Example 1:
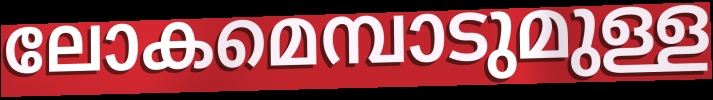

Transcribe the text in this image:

ലോകമെമ്പാടുമുള്ള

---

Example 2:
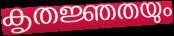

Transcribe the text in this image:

കൃതജ്ഞതയും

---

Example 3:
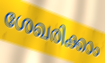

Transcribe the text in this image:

ശേഖരിക്കാം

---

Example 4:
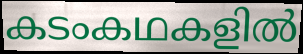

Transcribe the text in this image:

കടംകഥകളിൽ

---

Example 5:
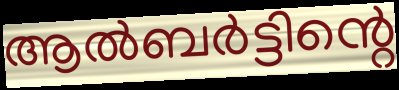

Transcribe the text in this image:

ആൽബർട്ടിന്റെ